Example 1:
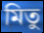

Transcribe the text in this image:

মিতু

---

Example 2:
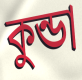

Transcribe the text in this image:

কুন্ডা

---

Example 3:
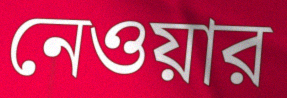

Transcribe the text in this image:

নেওয়ার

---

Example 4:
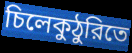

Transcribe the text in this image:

চিলেকুঠুরিতে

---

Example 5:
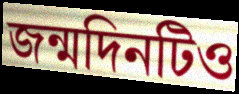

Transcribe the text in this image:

জন্মদিনটিও